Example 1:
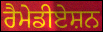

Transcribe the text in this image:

ਰੈਮੇਡੀਏਸ਼ਨ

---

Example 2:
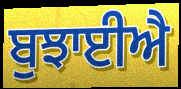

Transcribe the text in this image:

ਬੁਝਾਈਐ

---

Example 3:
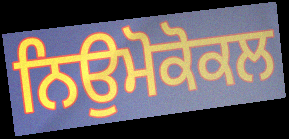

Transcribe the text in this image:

ਨਿਉਮੋਕੋਕਲ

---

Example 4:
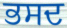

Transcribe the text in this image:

ਭਸਦ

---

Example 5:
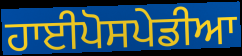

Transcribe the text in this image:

ਹਾਈਪੋਸਪੇਡੀਆ